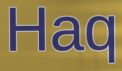
Haq